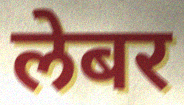
लेबर